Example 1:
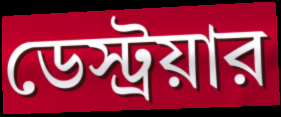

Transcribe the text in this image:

ডেস্ট্রয়ার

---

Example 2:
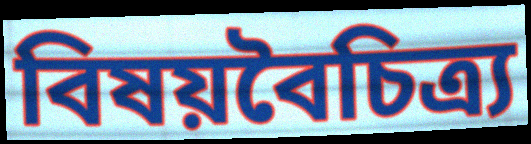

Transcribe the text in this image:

বিষয়বৈচিত্র্য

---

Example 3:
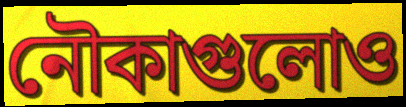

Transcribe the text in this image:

নৌকাগুলোও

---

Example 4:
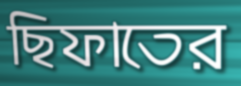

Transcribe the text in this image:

ছিফাতের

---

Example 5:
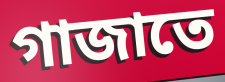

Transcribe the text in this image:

গাজাতে